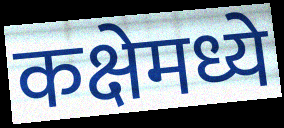
कक्षेमध्ये